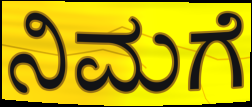
ನಿಮಗೆ